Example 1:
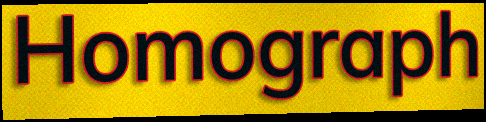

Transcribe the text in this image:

Homograph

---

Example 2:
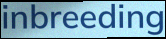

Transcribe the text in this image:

inbreeding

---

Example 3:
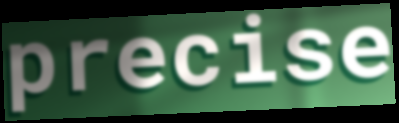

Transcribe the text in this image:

precise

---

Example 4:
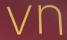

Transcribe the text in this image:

vn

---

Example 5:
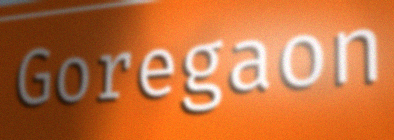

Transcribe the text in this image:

Goregaon